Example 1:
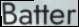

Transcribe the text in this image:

Batter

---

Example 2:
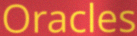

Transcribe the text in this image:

Oracles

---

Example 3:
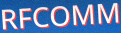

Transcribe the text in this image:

RFCOMM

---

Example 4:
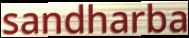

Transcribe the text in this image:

sandharba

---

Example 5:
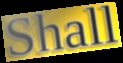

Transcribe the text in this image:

Shall